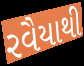
રવૈયાથી